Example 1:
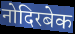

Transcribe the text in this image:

नोदिरबेक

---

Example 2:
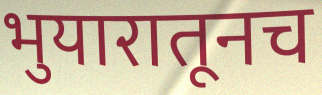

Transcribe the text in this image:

भुयारातूनच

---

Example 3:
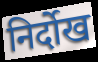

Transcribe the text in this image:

निर्दोख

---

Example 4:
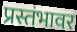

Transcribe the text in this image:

प्रस्तंभावर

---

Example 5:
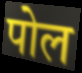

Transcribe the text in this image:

पोल